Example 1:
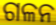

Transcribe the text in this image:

ଗଳନ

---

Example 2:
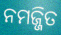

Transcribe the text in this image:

ନମଜ୍ଜିତ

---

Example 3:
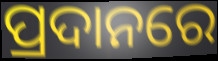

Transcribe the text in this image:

ପ୍ରଦାନରେ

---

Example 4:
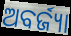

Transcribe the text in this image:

ଅବର୍ଜ୍ୟା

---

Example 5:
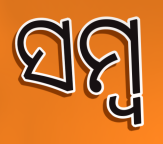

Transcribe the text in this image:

ସମ୍ବ